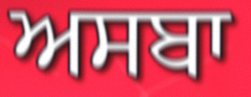
ਅਸਬਾ